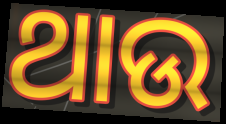
ଥାଉ